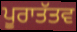
ਪੂਰਾਤੱਤਵ